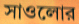
সাওলোর